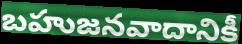
బహుజనవాదానికీ